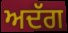
ਅਦੱਗ